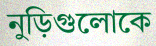
নুড়িগুলোকে